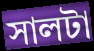
সালটা